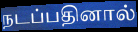
நடப்பதினால்